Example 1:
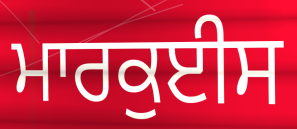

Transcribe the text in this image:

ਮਾਰਕੁਈਸ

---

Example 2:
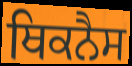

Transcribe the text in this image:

ਥਿਕਨੈਸ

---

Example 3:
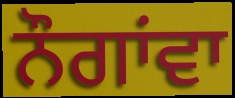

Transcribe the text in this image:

ਨੌਗਾਂਵਾ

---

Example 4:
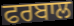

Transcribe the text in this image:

ਫਰਬਾਲ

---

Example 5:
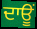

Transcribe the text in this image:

ਦਾਊਂ